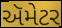
ઍમેટર